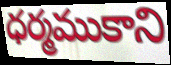
ధర్మముకాని